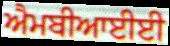
ਐਮਬੀਆਈਈ